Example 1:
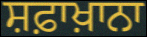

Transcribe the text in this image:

ਸ਼ਫ਼ਾਖ਼ਾਨਾ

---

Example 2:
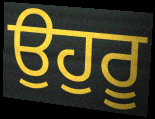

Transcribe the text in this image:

ਉਹੁਰੂ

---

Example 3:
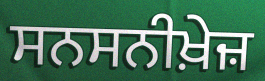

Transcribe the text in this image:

ਸਨਸਨੀਖ਼ੇਜ਼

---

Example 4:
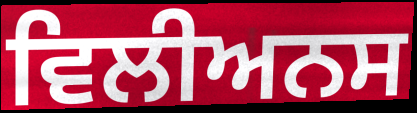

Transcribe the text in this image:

ਵਿਲੀਅਨਸ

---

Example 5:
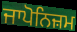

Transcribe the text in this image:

ਜਾਪੋਨਿਜ਼ਮ